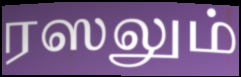
ரஸலும்